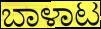
ಬಾಳಾಟ